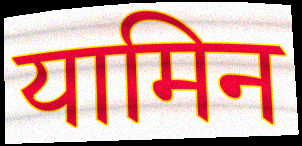
यामिन